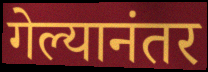
गेल्यानंतर